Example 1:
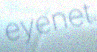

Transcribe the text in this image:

eyenet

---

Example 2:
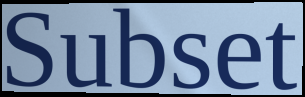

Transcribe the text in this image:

Subset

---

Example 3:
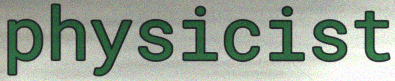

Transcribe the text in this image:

physicist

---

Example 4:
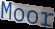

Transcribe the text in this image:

Moor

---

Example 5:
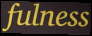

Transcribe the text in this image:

fulness